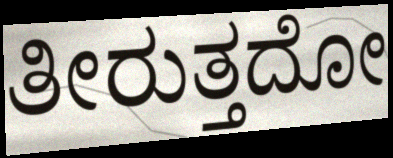
ತೀರುತ್ತದೋ